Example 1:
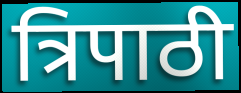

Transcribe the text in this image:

त्रिपाठी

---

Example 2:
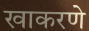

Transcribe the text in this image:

खाकरणे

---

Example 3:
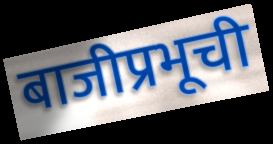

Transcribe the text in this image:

बाजीप्रभूची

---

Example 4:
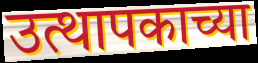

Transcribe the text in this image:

उत्थापकाच्या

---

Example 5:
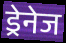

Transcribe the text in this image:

ड्रेनेज